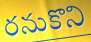
రనుకొని